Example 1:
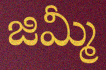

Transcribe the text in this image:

జిమ్మీ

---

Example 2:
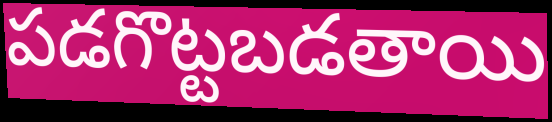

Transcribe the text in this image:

పడగొట్టబడతాయి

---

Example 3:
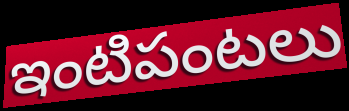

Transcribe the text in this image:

ఇంటిపంటలు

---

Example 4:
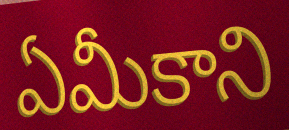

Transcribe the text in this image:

ఏమీకాని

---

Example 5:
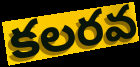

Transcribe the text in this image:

కలరవ